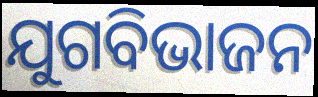
ଯୁଗବିଭାଜନ